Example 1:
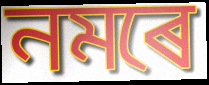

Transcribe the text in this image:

নমৰে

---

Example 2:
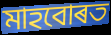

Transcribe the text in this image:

মাহবোৰত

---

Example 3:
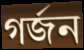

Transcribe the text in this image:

গৰ্জন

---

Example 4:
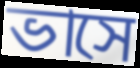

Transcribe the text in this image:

ভাসে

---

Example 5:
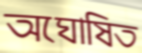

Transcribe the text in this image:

অঘোষিত